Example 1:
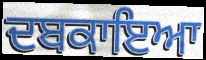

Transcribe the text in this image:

ਦਬਕਾਇਆ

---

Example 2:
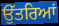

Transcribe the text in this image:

ਉੱਤਰਿਆਂ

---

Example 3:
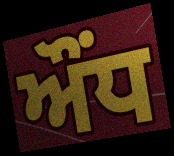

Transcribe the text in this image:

ਔਂਧ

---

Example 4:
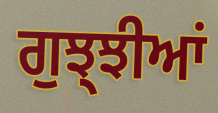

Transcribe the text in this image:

ਗੁਝ੍ਝੀਆਂ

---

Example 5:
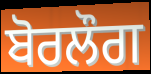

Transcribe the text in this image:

ਬੋਰਲੌਗ